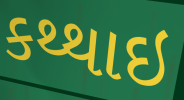
કથ્થાઇ